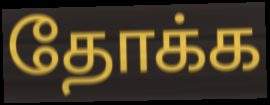
தோக்க